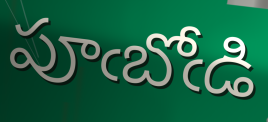
పూఁబోఁడి